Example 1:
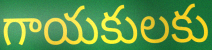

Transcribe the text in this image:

గాయకులకు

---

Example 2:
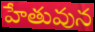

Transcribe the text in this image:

హేతువున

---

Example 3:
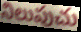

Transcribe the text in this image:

నిలుపుచు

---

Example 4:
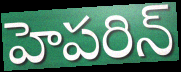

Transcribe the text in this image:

హెపరిన్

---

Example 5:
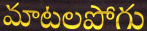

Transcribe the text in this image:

మాటలపోగు